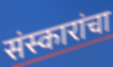
संस्कारांचा